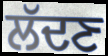
ਲੱਦਣ